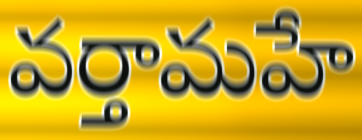
వర్తామహే